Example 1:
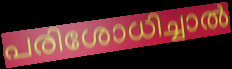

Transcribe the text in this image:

പരിശോധിച്ചാൽ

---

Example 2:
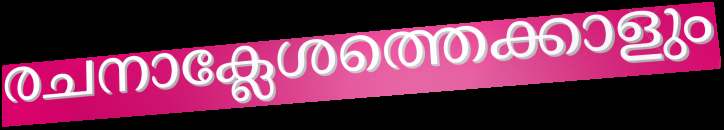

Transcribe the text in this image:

രചനാക്ലേശത്തെക്കാളും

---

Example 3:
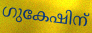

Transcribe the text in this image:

ഗുകേഷിന്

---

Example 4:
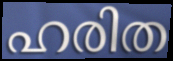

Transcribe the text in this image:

ഹരിത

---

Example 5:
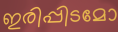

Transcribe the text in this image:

ഇരിപ്പിടമോ